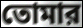
তোমার